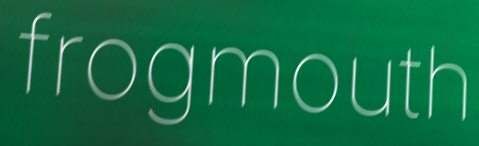
frogmouth